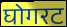
घोगरट